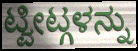
ಟ್ವೀಟ್ಗಳನ್ನು